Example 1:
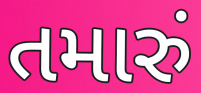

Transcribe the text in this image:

તમારું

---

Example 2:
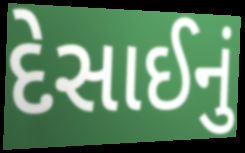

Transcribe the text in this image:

દેસાઈનું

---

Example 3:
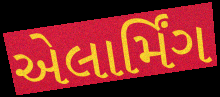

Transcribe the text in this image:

એલાર્મિંગ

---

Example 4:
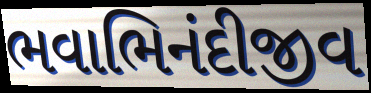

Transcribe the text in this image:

ભવાભિનંદીજીવ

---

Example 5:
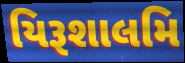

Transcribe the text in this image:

યિરૂશાલમિ